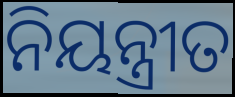
ନିୟନ୍ତ୍ରୀତ